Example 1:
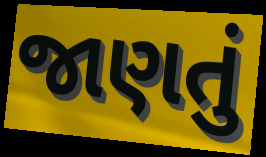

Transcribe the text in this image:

જાણતું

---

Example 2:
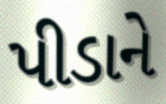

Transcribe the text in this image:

પીડાને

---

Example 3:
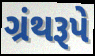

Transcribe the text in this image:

ગ્રંથરૂપે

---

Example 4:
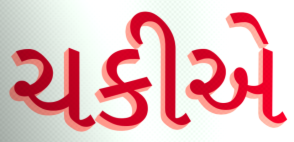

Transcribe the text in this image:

ચકીએ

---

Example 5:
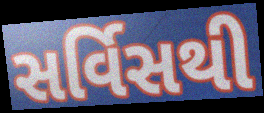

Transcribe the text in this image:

સર્વિસથી